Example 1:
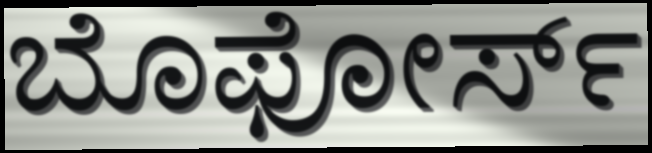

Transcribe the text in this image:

ಬೊಫೋರ್ಸ್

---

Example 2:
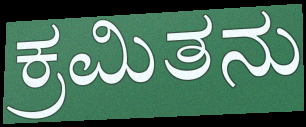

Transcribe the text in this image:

ಕ್ರಮಿತನು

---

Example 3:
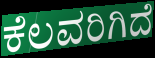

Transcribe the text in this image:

ಕೆಲವರಿಗಿದೆ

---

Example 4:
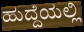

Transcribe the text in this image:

ಹುದ್ದೆಯಲ್ಲಿ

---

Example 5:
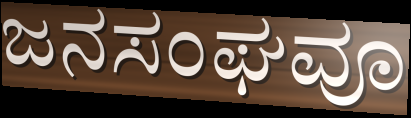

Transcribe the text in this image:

ಜನಸಂಘವೂ